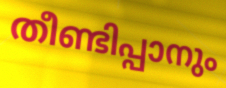
തീണ്ടിപ്പാനും